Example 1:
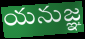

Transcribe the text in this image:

యనుజ్ఞ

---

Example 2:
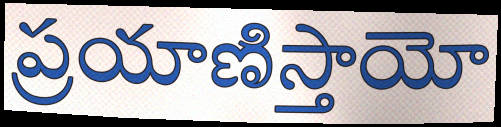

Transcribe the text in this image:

ప్రయాణిస్తాయో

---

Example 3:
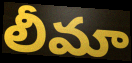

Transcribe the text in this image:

లీమా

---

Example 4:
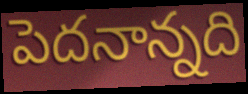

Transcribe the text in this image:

పెదనాన్నది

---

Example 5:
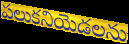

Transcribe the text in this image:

పలుకనియెడలను